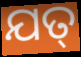
ଯତ୍